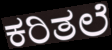
ಕರಿತಲೆ